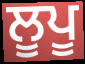
ਲੂਪੂ